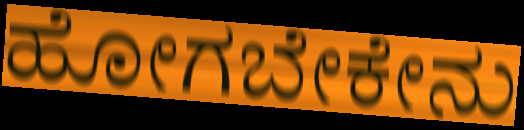
ಹೋಗಬೇಕೇನು